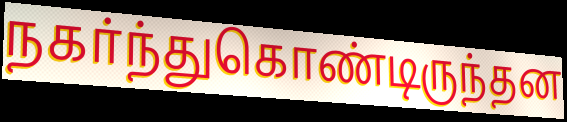
நகர்ந்துகொண்டிருந்தன